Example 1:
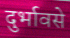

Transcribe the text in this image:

दुर्भावसे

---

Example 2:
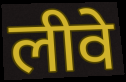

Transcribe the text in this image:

लीवे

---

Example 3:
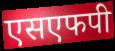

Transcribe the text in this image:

एसएफपी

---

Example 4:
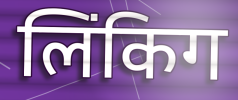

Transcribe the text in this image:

लिंकिग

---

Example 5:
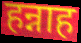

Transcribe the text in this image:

हन्नाह